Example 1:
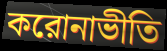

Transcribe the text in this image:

করোনাভীতি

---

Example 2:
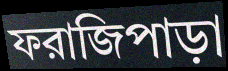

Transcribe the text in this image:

ফরাজিপাড়া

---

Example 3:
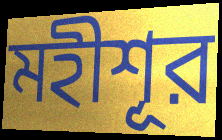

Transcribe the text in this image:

মহীশূর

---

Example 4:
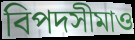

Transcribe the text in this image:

বিপদসীমাও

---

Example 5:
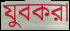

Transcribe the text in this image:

যুবকরা